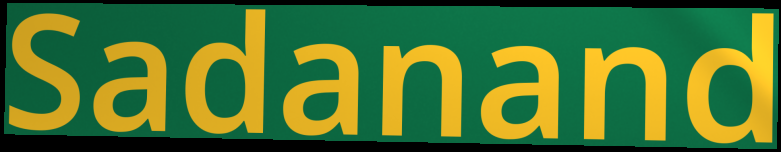
Sadanand